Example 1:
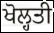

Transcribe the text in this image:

ਖੋਲ੍ਹਤੀ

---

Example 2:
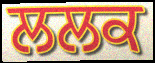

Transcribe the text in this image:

ਲਲਕ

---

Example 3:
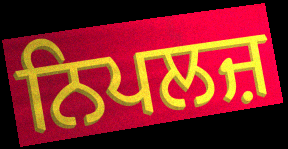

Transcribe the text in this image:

ਨਿਪਲਜ਼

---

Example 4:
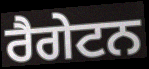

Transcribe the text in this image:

ਰੈਗੇਟਨ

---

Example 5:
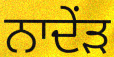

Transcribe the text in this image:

ਨਾਦੇਂੜ